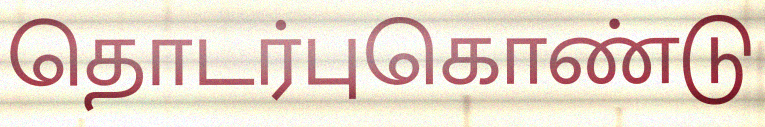
தொடர்புகொண்டு